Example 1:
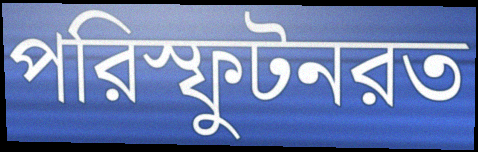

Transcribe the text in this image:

পরিস্ফুটনরত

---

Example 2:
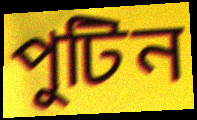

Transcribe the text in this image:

পুটিন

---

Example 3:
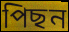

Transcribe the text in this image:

পিছন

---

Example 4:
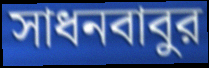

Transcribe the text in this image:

সাধনবাবুর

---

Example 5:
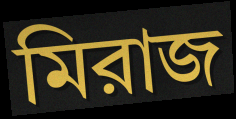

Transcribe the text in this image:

মিরাজ